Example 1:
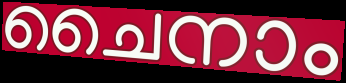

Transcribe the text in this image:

ചൈനാം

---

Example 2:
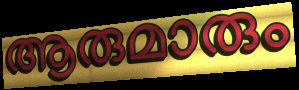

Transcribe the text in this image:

ആരുമാരും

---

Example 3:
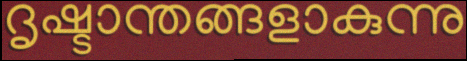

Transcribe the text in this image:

ദൃഷ്ടാന്തങ്ങളാകുന്നു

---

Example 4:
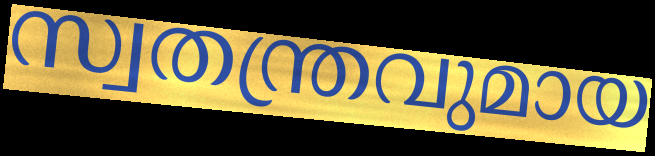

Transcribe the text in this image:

സ്വതന്ത്രവുമായ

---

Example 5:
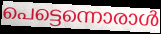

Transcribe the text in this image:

പെട്ടെന്നൊരാൾ